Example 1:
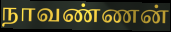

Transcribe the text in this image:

நாவண்ணன்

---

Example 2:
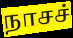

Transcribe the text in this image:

நாசச்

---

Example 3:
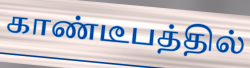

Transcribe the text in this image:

காண்டீபத்தில்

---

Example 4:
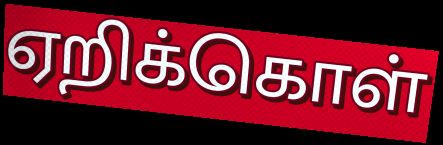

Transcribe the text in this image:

ஏறிக்கொள்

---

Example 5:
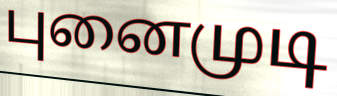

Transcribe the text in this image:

புனைமுடி